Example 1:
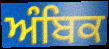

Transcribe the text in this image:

ਅੰਬਿਕ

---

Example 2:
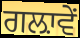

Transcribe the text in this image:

ਗਲ਼ਾਵੇਂ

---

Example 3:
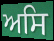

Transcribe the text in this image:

ਅਸਿ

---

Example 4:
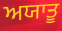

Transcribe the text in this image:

ਅਯਾਤੂ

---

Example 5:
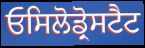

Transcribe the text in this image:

ਓਸਿਲੋਡ੍ਰੋਸਟੈਟ